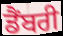
ਡੈਂਬਰੀ